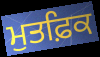
ਮੁਤਫ਼ਿਕ